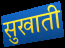
सुखाती